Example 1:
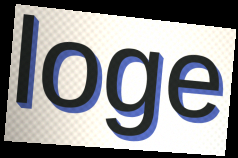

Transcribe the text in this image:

loge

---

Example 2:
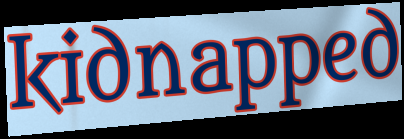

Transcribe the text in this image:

kidnapped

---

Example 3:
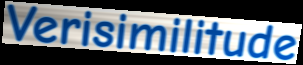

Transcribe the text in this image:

Verisimilitude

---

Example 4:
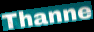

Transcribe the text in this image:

Thanne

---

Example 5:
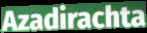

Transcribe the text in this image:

Azadirachta